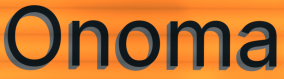
Onoma